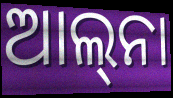
ଆଲ୍‍ନା